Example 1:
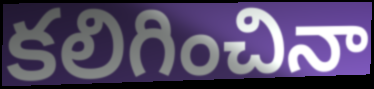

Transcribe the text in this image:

కలిగించినా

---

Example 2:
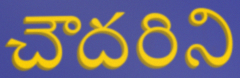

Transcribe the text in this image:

చౌదరిని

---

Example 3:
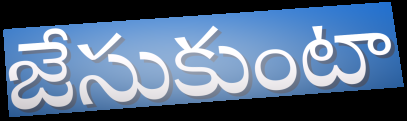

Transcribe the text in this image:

జేసుకుంటా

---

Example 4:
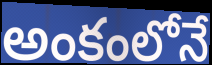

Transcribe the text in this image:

అంకంలోనే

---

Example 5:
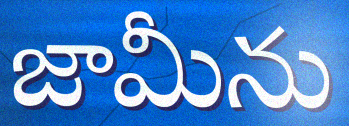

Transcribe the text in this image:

జామీను